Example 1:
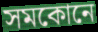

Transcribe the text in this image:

সমকোনে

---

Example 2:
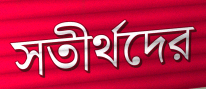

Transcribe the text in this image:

সতীর্থদের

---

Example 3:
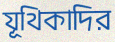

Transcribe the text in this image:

যূথিকাদির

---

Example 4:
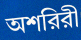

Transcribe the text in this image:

অশরিরী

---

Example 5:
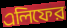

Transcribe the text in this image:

এলিফের